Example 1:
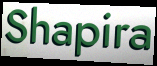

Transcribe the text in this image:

Shapira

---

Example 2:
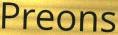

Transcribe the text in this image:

Preons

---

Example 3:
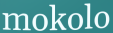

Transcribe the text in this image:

mokolo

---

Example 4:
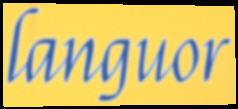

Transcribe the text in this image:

languor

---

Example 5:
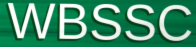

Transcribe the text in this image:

WBSSC